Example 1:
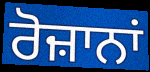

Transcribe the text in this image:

ਰੋਜ਼ਾਨਾਂ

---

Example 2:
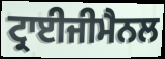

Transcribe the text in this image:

ਟ੍ਰਾਈਜੀਮੈਨਲ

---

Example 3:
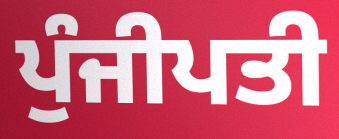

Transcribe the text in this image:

ਪੁੰਜੀਪਤੀ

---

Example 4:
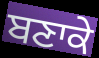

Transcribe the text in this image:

ਬਣਾਕੇ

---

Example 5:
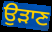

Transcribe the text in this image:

ਉਡ਼ਾਣ